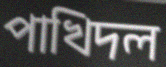
পাখিদল